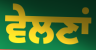
ਵੇਲਣਾਂ